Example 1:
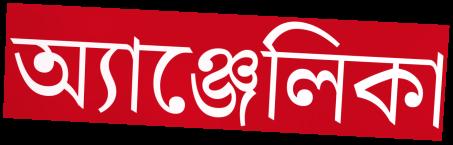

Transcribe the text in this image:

অ্যাঞ্জেলিকা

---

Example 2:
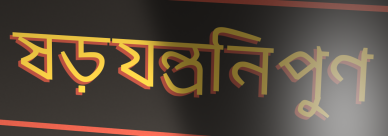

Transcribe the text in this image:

ষড়যন্ত্রনিপুণ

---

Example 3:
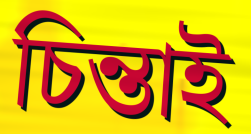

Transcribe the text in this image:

চিন্তাই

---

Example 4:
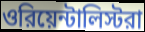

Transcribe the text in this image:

ওরিয়েন্টালিস্টরা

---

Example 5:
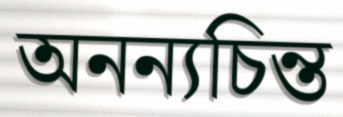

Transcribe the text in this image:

অনন্যচিন্ত